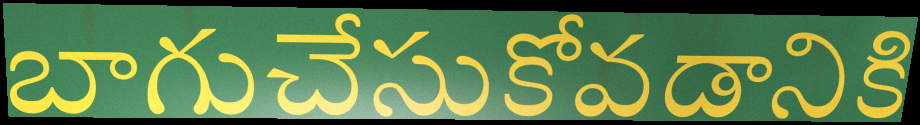
బాగుచేసుకోవడానికి